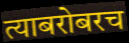
त्याबरोबरच